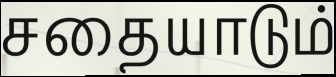
சதையாடும்